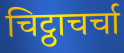
चिट्ठाचर्चा